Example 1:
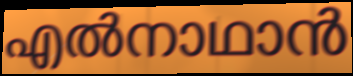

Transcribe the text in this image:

എൽനാഥാൻ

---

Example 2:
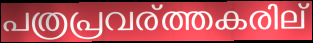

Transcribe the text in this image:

പത്രപ്രവര്ത്തകരില്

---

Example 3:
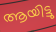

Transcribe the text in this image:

ആയിട്ടു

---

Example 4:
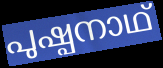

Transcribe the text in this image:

പുഷ്പനാഥ്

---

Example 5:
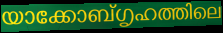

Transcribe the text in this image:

യാക്കോബ്ഗൃഹത്തിലെ